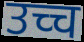
उच्‍च